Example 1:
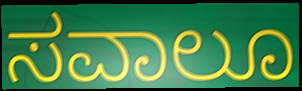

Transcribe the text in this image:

ಸವಾಲೂ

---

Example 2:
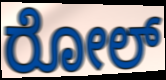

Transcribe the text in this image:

ರೋಲ್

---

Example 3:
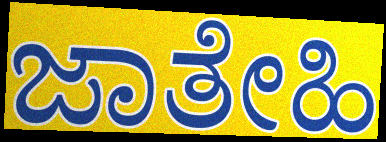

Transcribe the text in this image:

ಜಾತೇಹಿ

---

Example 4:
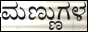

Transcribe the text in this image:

ಮಣ್ಣುಗಳ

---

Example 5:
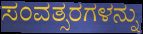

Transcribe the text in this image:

ಸಂವತ್ಸರಗಳನ್ನು